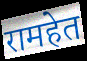
रामहेत